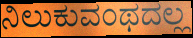
ನಿಲುಕುವಂಥದಲ್ಲ